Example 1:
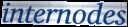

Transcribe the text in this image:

internodes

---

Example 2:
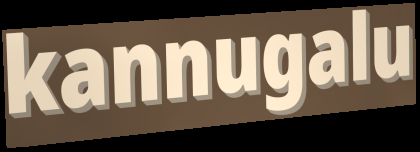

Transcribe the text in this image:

kannugalu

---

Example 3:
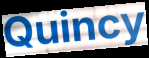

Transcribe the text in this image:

Quincy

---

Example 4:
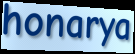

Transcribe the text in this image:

honarya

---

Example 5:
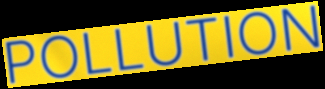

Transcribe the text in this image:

POLLUTION